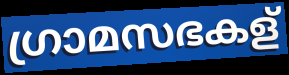
ഗ്രാമസഭകള്